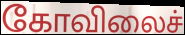
கோவிலைச்